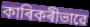
কাৰিকৰীভাৱে